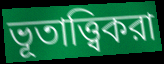
ভূতাত্ত্বিকরা